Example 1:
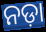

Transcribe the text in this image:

ନଡ଼ା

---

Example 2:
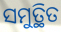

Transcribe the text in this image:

ସମୁତ୍ଥିତ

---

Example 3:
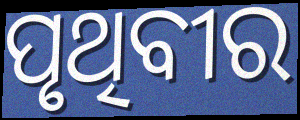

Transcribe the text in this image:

ପୃଥିବୀର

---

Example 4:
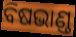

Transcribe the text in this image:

ବିଷଭାଣ୍ଡ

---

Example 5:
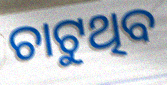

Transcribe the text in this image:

ଚାଟୁଥିବ